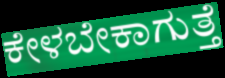
ಕೇಳಬೇಕಾಗುತ್ತೆ